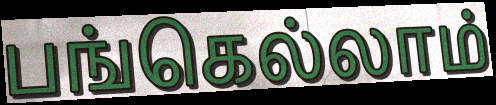
பங்கெல்லாம்